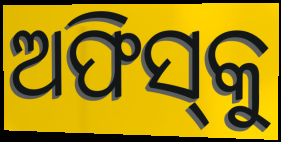
ଅଫିସ୍‌କୁ